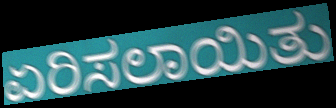
ಏರಿಸಲಾಯಿತು